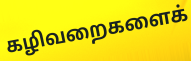
கழிவறைகளைக்